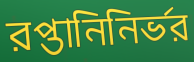
রপ্তানিনির্ভর